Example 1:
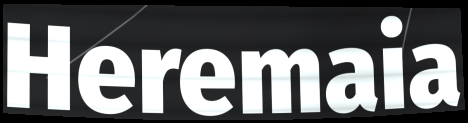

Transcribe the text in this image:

Heremaia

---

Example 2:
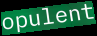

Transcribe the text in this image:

opulent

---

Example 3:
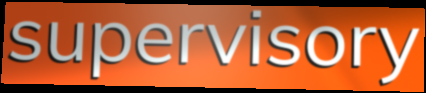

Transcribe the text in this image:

supervisory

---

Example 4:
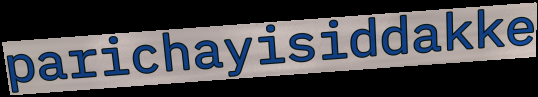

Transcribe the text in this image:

parichayisiddakke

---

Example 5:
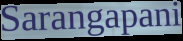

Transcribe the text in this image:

Sarangapani